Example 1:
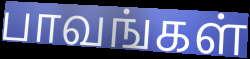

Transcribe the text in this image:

பாவங்கள்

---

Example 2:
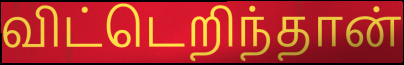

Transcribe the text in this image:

விட்டெறிந்தான்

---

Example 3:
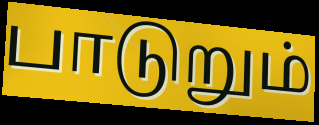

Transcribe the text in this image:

பாடுறும்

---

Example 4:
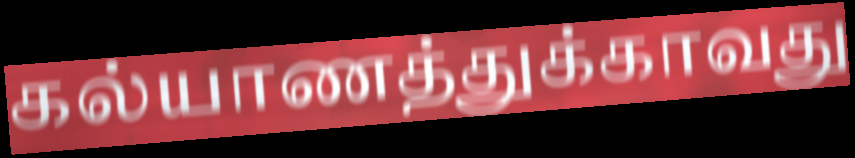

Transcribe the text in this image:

கல்யாணத்துக்காவது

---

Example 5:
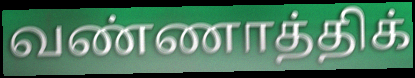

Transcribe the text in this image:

வண்ணாத்திக்